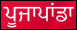
ਪੂਜਾਪਾਂਡਾ